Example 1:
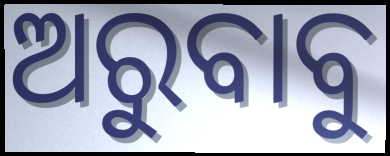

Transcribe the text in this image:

ଅରୁବାବୁ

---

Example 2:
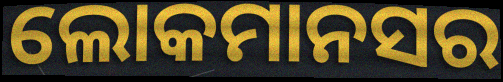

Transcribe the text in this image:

ଲୋକମାନସର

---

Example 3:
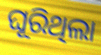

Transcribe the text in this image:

ଘୂରିଥିଲା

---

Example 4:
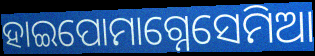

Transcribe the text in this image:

ହାଇପୋମାଗ୍ନେସେମିଆ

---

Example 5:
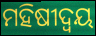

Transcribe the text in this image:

ମହିଷୀଦ୍ୱୟ